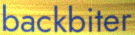
backbiter